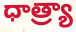
ధాత్ర్యా